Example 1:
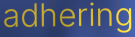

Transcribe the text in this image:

adhering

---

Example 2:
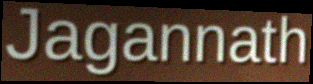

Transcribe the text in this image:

Jagannath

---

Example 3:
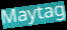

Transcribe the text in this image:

Maytag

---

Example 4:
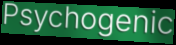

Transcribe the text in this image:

Psychogenic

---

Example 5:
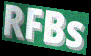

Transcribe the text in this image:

RFBs